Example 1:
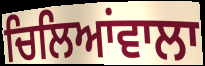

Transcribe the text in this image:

ਚਿਲਿਆਂਵਾਲਾ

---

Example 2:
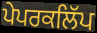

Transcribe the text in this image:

ਪੇਪਰਕਲਿੱਪ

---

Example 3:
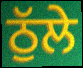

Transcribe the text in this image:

ਠੁੱਲੇ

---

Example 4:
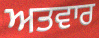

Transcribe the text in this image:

ਅਤਵਾਰ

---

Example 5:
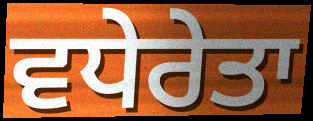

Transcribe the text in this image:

ਵਧੇਰੇਤਾ